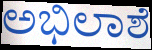
ಅಭಿಲಾಶೆ